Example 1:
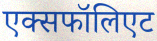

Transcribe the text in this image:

एक्सफॉलिएट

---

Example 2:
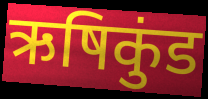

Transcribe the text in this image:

ऋषिकुंड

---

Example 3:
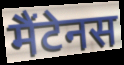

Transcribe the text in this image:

मैंटेनस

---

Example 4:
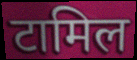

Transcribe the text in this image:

टामिल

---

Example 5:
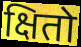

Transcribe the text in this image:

क्षितो